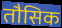
तौसिक